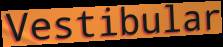
Vestibular